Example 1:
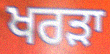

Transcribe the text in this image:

ਖਰੜਾ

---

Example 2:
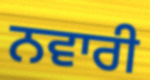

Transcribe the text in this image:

ਨਵਾਰੀ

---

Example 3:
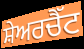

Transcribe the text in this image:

ਸ਼ੇਅਰਚੈੱਟ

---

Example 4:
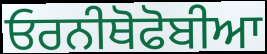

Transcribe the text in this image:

ਓਰਨੀਥੋਫੋਬੀਆ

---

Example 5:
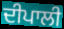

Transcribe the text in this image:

ਦੀਪਾਲੀ